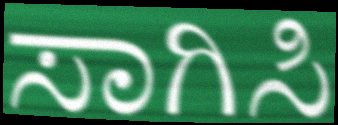
ಸಾಗಿಸಿ